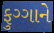
ફુગ્ગાને